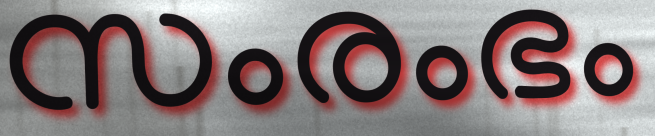
സംരംഭം